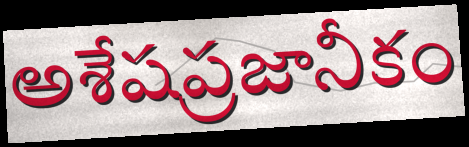
అశేషప్రజానీకం